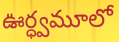
ఊర్ధ్వమూలో